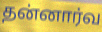
தன்னார்வ